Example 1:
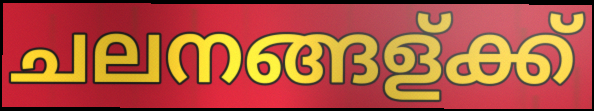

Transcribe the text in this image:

ചലനങ്ങള്ക്ക്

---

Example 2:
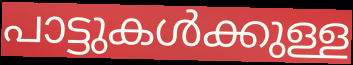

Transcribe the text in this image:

പാട്ടുകൾക്കുള്ള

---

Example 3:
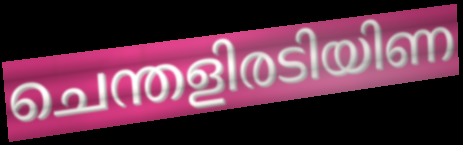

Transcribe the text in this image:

ചെന്തളിരടിയിണ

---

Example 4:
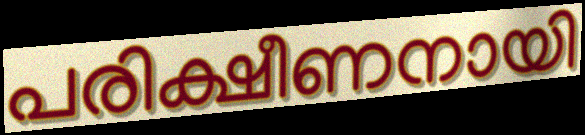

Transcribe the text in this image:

പരിക്ഷീണനായി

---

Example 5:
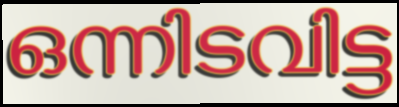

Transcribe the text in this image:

ഒന്നിടവിട്ട